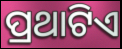
ପ୍ରଥାଟିଏ